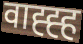
वाह्ह्ह